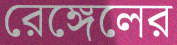
রেঙ্গেলের